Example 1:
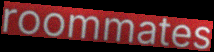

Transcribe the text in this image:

roommates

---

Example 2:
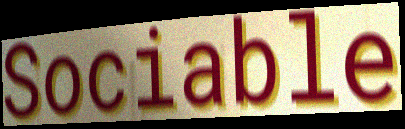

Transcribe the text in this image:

Sociable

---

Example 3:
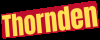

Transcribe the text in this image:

Thornden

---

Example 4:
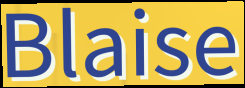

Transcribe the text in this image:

Blaise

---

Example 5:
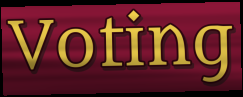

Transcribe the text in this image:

Voting